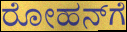
ರೋಹನ್‌ಗೆ